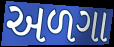
અળગા